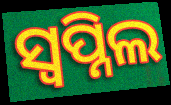
ସ୍ୱପ୍ନିଲ